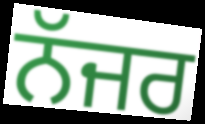
ਨੱਜਰ